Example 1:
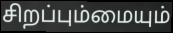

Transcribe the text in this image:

சிறப்பும்மையும்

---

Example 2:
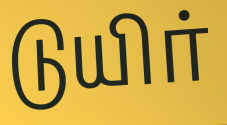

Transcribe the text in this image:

டுயிர்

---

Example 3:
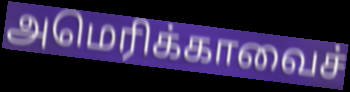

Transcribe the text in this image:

அமெரிக்காவைச்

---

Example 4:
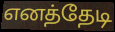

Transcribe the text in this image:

எனத்தேடி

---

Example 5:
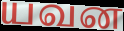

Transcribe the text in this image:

யவன